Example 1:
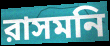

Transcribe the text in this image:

রাসমনি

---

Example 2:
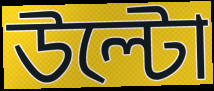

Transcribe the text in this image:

উল্টো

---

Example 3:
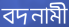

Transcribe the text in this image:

বদনামী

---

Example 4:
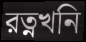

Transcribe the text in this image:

রত্নখনি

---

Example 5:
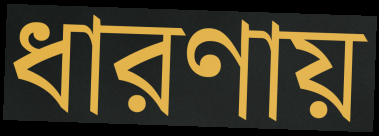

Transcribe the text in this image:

ধারণায়